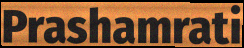
Prashamrati